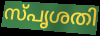
സ്പൃശതി